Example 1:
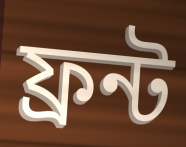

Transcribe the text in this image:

ফ্ৰন্ট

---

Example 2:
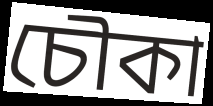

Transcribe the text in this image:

চৌকা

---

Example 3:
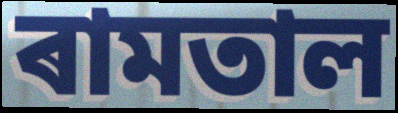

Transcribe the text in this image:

ৰামতাল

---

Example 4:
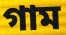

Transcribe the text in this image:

গাম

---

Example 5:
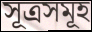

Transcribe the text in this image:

সূত্ৰসমূহ